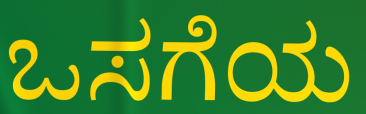
ಒಸಗೆಯ